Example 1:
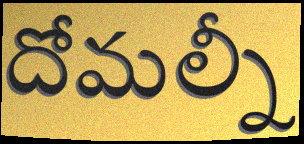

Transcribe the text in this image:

దోమల్నీ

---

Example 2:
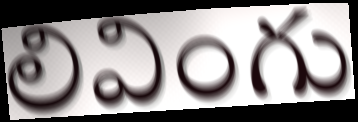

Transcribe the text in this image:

లివింగు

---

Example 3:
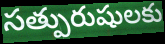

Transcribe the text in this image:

సత్పురుషులకు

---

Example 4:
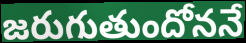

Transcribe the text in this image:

జరుగుతుందోననే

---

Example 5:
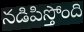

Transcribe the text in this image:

నడిపిస్తోంది